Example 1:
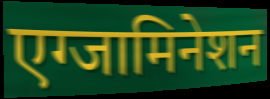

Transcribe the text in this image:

एग्‍जामिनेशन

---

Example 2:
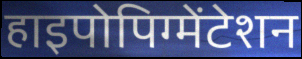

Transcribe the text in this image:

हाइपोपिग्मेंटेशन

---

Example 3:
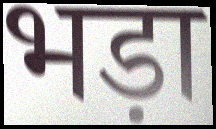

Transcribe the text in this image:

भड़ा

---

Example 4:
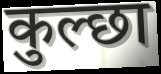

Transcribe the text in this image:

कुल्छा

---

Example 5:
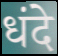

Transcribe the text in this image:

धंदे